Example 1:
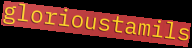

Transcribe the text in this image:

glorioustamils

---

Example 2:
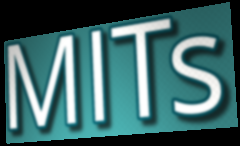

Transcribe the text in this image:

MITs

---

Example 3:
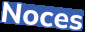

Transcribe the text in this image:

Noces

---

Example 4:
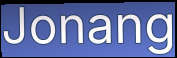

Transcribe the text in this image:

Jonang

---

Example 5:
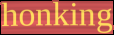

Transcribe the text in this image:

honking